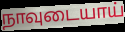
நாவுடையாய்